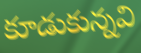
కూడుకున్నవి